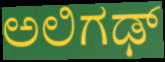
ಅಲಿಗಢ್